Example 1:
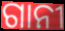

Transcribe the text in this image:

ଗାନୀ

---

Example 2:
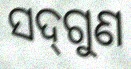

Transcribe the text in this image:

ସଦ୍‌ଗୁଣ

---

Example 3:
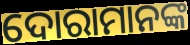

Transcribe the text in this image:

ଦୋରାମାନଙ୍କ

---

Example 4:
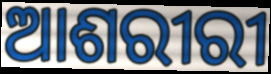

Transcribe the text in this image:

ଆଶରୀରୀ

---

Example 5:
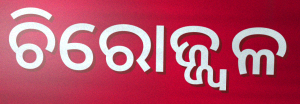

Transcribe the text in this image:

ଚିରୋଜ୍ଜ୍ଵଳ